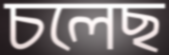
চলেছ